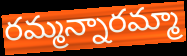
రమ్మన్నారమ్మా